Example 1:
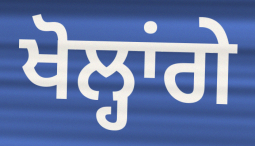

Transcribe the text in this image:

ਖੋਲ੍ਹਾਂਗੇ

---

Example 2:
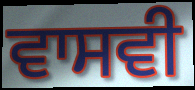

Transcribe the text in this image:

ਵਾਸਵੀ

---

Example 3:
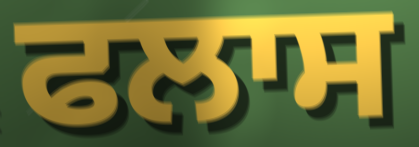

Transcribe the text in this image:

ਫਲਾਸ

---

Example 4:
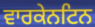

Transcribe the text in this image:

ਵਾਰਕੇਨਟਿਨ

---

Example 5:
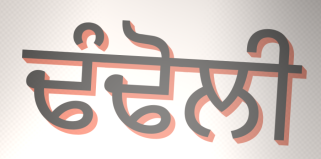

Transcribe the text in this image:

ਢੰਢੋਲੀ